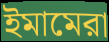
ইমামেরা